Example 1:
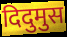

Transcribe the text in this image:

दिदुमुस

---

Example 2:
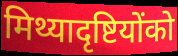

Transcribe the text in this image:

मिथ्यादृष्टियोंको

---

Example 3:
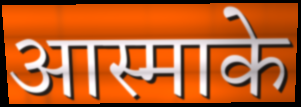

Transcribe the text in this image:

आस्माके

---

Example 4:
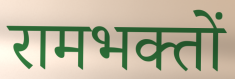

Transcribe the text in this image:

रामभक्तों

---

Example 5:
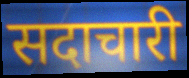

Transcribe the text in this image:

सदाचारी